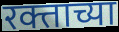
रक्ताच्या